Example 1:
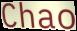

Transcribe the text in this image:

Chao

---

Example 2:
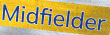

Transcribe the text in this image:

Midfielder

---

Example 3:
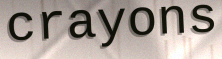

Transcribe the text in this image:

crayons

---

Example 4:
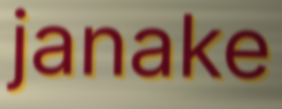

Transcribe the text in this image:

janake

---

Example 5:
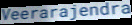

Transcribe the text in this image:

Veerarajendra